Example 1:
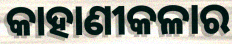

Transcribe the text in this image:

କାହାଣୀକଳାର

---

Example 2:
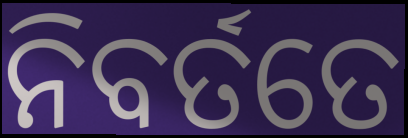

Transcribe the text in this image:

ନିବର୍ତତେ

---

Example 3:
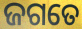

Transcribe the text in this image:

ଜଗତେ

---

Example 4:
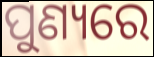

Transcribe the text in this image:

ପୁଣ୍ୟରେ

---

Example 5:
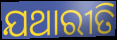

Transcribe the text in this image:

ଯଥାରୀତି